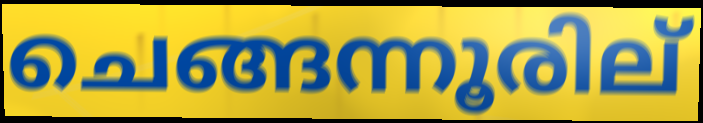
ചെങ്ങന്നൂരില്